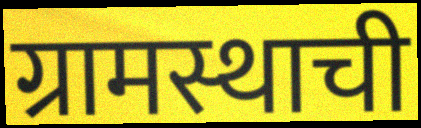
ग्रामस्थाची